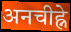
अनचीह्ने